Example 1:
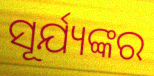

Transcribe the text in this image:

ସୂର୍ଯ୍ୟଙ୍କର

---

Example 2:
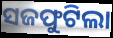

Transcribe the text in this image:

ସଜଫୁଟିଲା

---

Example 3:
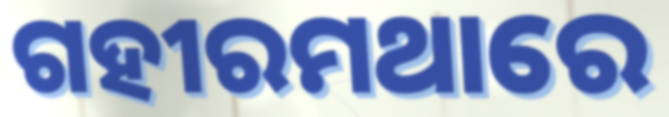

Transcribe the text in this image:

ଗହୀରମଥାରେ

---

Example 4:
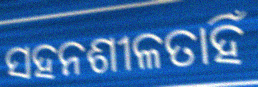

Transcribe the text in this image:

ସହନଶୀଳତାହିଁ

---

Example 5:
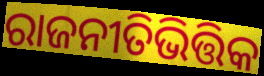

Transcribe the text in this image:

ରାଜନୀତିଭିତ୍ତିକ